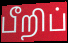
பீறிப்